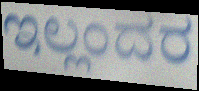
ಇಲ್ಲಂದರ